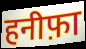
हनीफ़ा